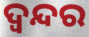
ଦ୍ବନ୍ଦର